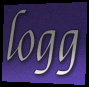
logg